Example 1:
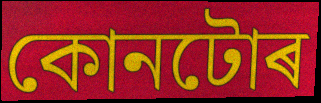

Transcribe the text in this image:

কোনটোৰ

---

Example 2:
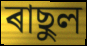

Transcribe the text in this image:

ৰাছুল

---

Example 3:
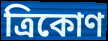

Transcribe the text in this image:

ত্ৰিকোণ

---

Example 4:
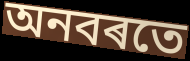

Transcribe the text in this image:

অনবৰতে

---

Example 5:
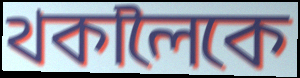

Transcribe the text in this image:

থকালৈকে